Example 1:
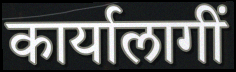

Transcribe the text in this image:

कार्यालागीं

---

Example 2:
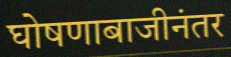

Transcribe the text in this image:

घोषणाबाजीनंतर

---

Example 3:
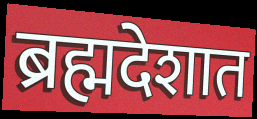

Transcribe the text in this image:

ब्रह्मदेशात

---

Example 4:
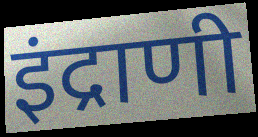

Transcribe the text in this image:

इंद्राणी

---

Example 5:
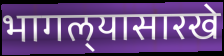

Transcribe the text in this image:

भागल्यासारखे